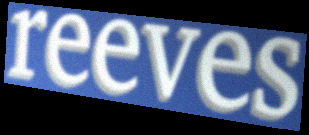
reeves